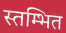
स्तम्भित